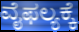
ವೈಫಲ್ಯಕ್ಕೆ